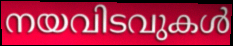
നയവിടവുകൾ